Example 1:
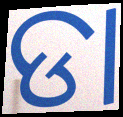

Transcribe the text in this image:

ଡା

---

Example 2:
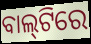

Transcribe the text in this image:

ବାଲ୍‌ଟିରେ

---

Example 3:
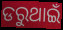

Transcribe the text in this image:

ଡରୁଥାଇଁ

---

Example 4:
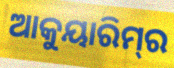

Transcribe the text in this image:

ଆକୁୟାରିମ୍‌ର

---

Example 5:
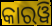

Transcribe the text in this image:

କାରୱି